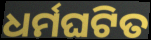
ଧର୍ମଘଟିତ